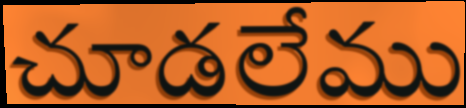
చూడలేము